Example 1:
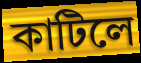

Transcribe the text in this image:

কাটিলে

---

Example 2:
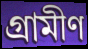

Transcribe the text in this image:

গ্ৰামীণ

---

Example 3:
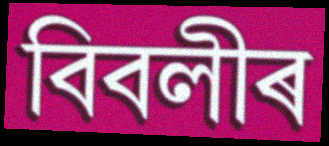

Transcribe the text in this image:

বিবলীৰ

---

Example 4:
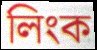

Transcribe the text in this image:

লিংক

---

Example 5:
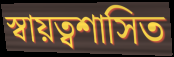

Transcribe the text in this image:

স্বায়ত্বশাসিত